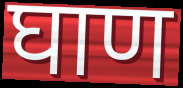
घाण